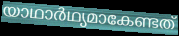
യാഥാർഥ്യമാകേണ്ടത്